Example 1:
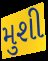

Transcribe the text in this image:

મુશી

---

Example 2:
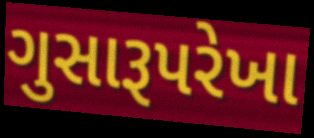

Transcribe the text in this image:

ગુસારૂપરેખા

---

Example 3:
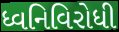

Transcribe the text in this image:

ધ્વનિવિરોધી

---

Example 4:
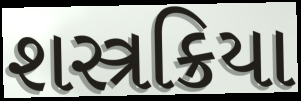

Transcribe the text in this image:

શસ્ત્રક્રિયા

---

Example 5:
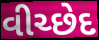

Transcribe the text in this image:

વીચ્છેદ